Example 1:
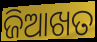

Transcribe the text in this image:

ଜିଆଖତ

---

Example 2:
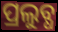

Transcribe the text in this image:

ପ୍ରଲୁବ୍ଧ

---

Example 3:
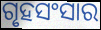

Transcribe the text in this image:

ଗୃହସଂସାର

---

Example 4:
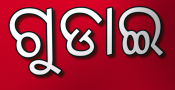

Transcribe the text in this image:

ଗୁଡାଇ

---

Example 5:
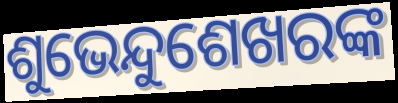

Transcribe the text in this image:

ଶୁଭେନ୍ଦୁଶେଖରଙ୍କ